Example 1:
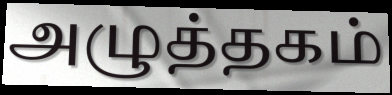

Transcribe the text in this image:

அழுத்தகம்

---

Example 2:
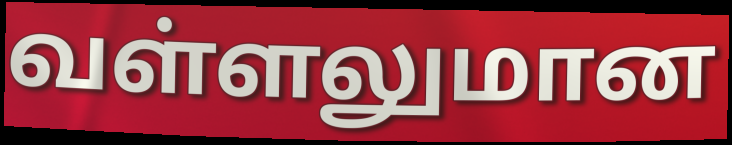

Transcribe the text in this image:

வள்ளலுமான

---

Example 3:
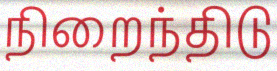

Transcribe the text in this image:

நிறைந்திடு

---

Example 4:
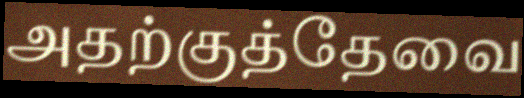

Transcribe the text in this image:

அதற்குத்தேவை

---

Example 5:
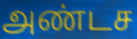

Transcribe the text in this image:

அண்டச